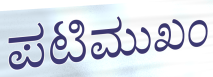
ಪಟಿಮುಖಂ